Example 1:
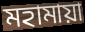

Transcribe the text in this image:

মহামায়া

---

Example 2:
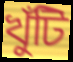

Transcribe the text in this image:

খুঁটি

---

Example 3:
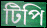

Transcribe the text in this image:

টিপি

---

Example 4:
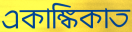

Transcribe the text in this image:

একাঙ্কিকাত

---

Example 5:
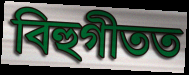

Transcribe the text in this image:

বিহুগীতত